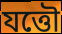
যত্তৌ